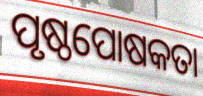
ପୃଷ୍ଠପୋଷକତା